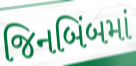
જિનબિંબમાં